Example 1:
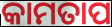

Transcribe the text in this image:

କାମତାପ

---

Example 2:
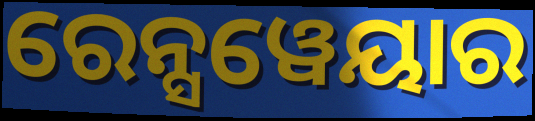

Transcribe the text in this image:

ରେନ୍ସୱେୟାର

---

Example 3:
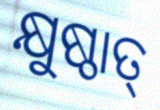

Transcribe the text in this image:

କ୍ଷୁଷ୍ଠାତ୍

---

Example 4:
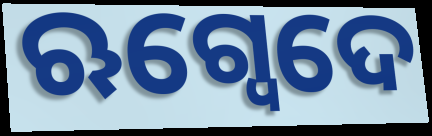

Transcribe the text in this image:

ଋଗ୍ଵେଦେ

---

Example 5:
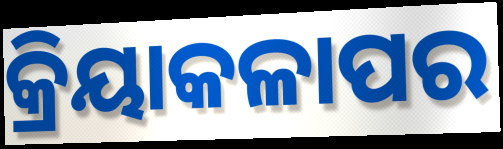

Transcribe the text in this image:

କ୍ରିୟାକଳାପର